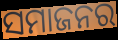
ସମାଜନର